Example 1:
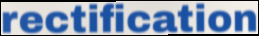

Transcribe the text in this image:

rectification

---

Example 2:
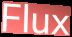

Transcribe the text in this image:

Flux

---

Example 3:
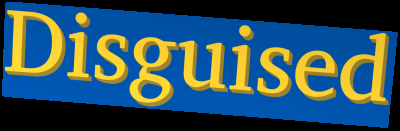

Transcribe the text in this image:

Disguised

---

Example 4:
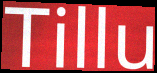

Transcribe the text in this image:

Tillu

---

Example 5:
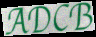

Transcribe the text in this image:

ADCB